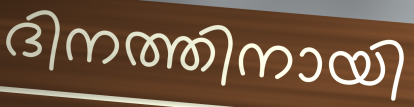
ദിനത്തിനായി